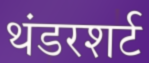
थंडरशर्ट